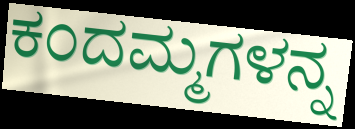
ಕಂದಮ್ಮಗಳನ್ನ